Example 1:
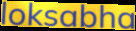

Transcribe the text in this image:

loksabha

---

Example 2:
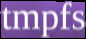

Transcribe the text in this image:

tmpfs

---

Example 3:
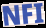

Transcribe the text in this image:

NFI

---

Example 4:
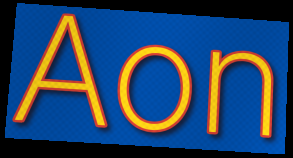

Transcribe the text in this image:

Aon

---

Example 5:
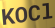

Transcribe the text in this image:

KOCl